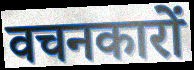
वचनकारों